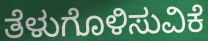
ತೆಳುಗೊಳಿಸುವಿಕೆ